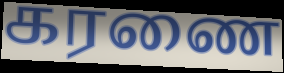
கரணை